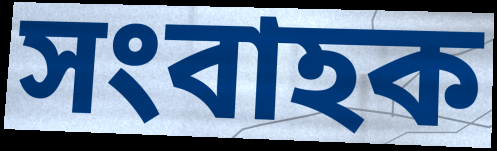
সংবাহক